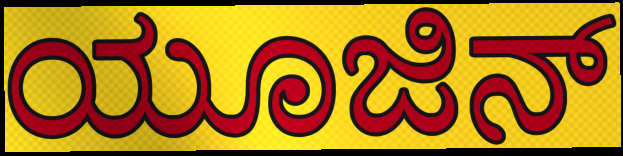
ಯೂಜಿನ್